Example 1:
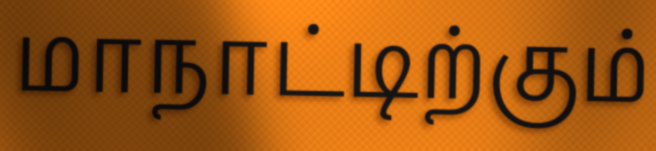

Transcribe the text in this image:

மாநாட்டிற்கும்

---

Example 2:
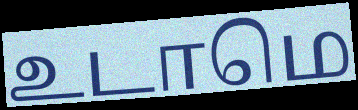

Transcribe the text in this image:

உடாமெ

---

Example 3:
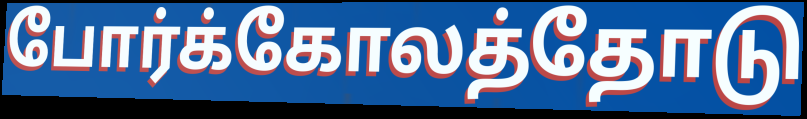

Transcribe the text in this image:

போர்க்கோலத்தோடு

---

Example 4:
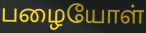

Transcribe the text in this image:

பழையோள்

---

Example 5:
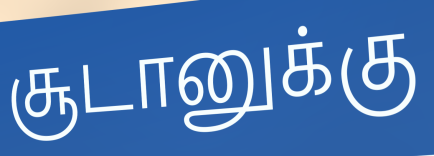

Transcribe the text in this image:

சூடானுக்கு